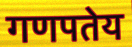
गणपतेय